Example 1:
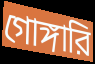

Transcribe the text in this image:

গোঙ্গারি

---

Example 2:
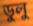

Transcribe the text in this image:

ডুলু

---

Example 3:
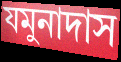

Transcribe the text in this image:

যমুনাদাস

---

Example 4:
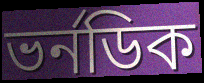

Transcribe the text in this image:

ভর্নডিক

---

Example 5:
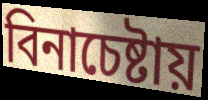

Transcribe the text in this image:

বিনাচেষ্টায়